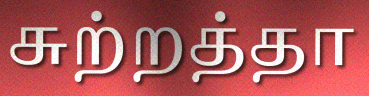
சுற்றத்தா